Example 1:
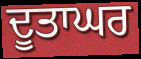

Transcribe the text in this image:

ਦੂਤਾਘਰ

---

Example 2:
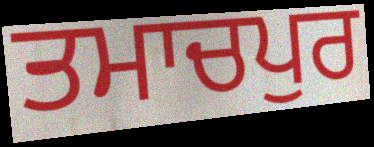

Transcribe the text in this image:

ਤਮਾਚਪੁਰ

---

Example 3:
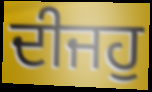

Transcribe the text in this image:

ਦੀਜਹੁ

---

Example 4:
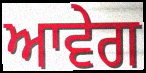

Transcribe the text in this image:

ਆਵੇਗ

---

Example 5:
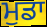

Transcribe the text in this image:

ਮੁਡਾ